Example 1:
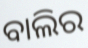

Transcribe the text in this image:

ବାଲିର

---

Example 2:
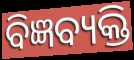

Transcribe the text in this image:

ବିଜ୍ଞବ୍ୟକ୍ତି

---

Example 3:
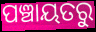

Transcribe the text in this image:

ପଞ୍ଚାୟତରୁ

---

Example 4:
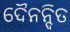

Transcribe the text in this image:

ଦୈନନ୍ଦିତ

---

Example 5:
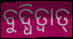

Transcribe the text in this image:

ବୁଦ୍ଧିତ୍ୱାତ୍